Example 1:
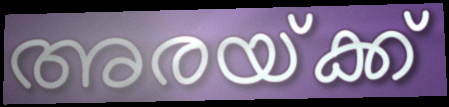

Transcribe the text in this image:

അരയ്‌ക്ക്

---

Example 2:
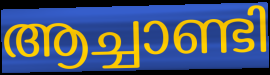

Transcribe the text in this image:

ആച്ചാണ്ടി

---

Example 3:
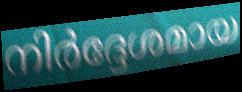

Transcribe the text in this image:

നിർദ്ദേശമായ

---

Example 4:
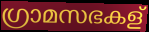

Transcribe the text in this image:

ഗ്രാമസഭകള്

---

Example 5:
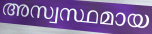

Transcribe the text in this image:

അസ്വസ്ഥമായ